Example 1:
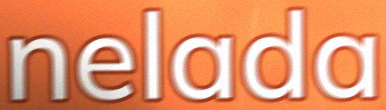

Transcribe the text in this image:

nelada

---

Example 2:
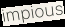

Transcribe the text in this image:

impious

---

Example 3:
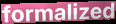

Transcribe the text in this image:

formalized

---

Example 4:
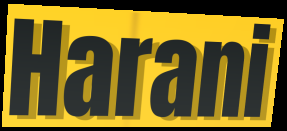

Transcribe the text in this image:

Harani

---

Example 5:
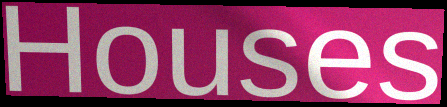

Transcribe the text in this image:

Houses